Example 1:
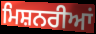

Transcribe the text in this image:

ਮਿਸ਼ਨਰੀਆਂ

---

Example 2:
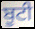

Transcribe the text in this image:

ਬੂਟੀ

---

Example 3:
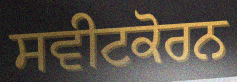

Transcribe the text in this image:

ਸਵੀਟਕੋਰਨ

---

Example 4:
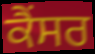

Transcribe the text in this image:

ਕੈਂਸਰ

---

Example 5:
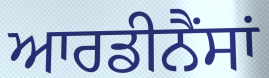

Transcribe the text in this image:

ਆਰਡੀਨੈਂਸਾਂ